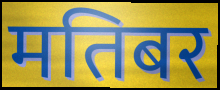
मतिबर